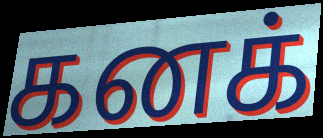
கனக்